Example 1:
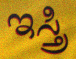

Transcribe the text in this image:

ಇಸ್ತ್ರಿ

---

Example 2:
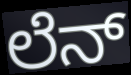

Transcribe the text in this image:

ಲೆನ್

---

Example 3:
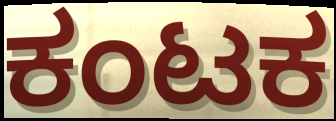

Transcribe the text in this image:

ಕಂಟಕ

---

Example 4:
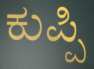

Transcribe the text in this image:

ಕುಪ್ಪಿ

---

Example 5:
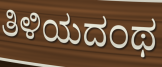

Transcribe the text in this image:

ತಿಳಿಯದಂಥ